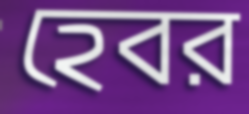
হেবর